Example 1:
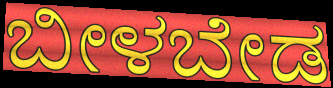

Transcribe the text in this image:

ಬೀಳಬೇಡ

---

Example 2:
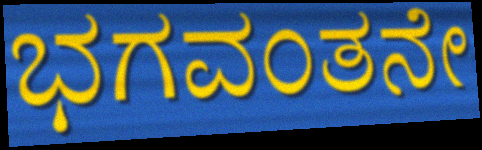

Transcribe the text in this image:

ಭಗವಂತನೇ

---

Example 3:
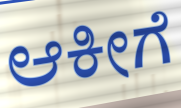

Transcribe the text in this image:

ಆಕೀಗೆ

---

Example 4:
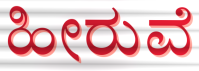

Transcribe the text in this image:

ಹೀರುವೆ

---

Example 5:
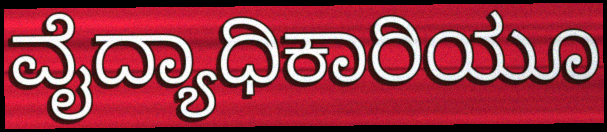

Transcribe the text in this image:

ವೈದ್ಯಾಧಿಕಾರಿಯೂ